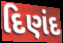
દિણંદ